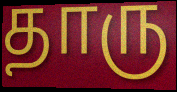
தாரு